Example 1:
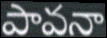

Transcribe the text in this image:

పావనా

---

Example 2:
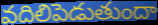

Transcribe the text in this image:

వదిలిపెడుతుందా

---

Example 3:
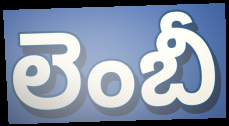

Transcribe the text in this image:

లెంబీ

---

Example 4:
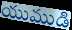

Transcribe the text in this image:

యుముడి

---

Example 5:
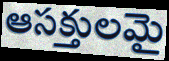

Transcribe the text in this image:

ఆసక్తులమై